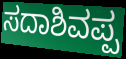
ಸದಾಶಿವಪ್ಪ